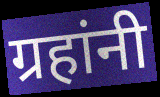
ग्रहांनी